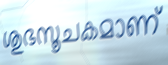
ശുഭസൂചകമാണ്